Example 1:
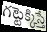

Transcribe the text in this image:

గట్టెక్కిస్తే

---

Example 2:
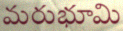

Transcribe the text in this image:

మరుభూమి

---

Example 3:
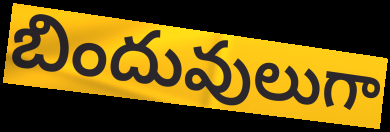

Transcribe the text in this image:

బిందువులుగా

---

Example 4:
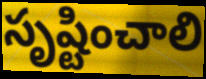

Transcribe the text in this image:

సృష్టించాలి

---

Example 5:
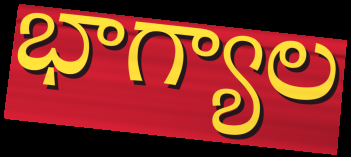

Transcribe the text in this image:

భాగ్యాల